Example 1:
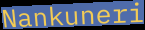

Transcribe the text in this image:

Nankuneri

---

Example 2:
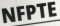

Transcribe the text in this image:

NFPTE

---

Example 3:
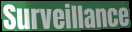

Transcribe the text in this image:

Surveillance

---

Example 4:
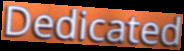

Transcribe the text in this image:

Dedicated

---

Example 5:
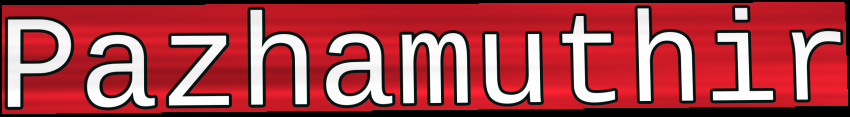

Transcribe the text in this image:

Pazhamuthir